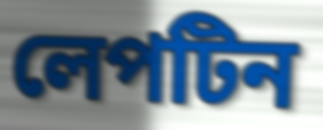
লেপটিন